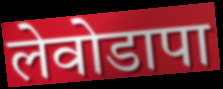
लेवोडापा